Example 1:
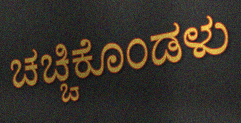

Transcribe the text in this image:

ಚಚ್ಚಿಕೊಂಡಳು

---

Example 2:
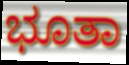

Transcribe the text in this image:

ಭೂತಾ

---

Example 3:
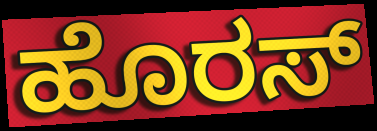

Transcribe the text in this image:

ಹೊರಸ್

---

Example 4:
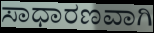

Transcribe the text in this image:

ಸಾಧಾರಣವಾಗಿ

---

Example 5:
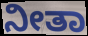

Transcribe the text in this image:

ನೀತಾ